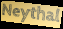
Neythal